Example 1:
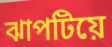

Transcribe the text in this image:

ঝাপটিয়ে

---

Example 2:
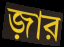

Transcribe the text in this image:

জ়ার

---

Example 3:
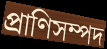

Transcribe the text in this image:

প্রাণিসম্পদ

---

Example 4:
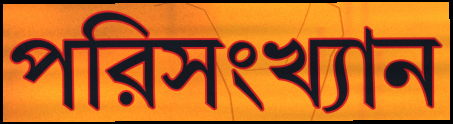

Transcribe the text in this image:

পরিসংখ্যান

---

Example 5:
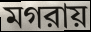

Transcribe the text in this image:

মগরায়